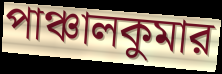
পাঞ্চালকুমার